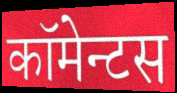
कॉमेन्टस